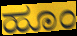
ಹೂಂ